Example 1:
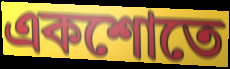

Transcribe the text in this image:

একশোতে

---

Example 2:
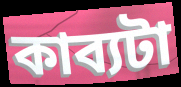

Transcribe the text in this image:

কাব্যটা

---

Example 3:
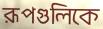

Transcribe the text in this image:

রূপগুলিকে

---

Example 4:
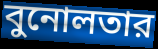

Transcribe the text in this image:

বুনোলতার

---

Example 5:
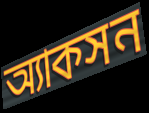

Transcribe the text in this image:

অ্যাকসন